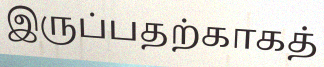
இருப்பதற்காகத்